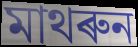
মাথৰুন